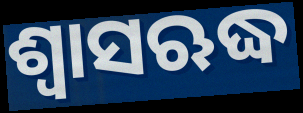
ଶ୍ୱାସଋଦ୍ଧ